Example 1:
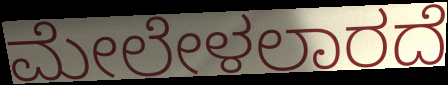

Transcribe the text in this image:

ಮೇಲೇಳಲಾರದೆ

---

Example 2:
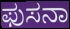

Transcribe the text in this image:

ಫುಸನಾ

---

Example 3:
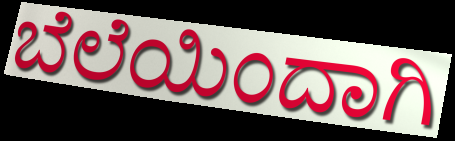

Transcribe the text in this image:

ಬೆಲೆಯಿಂದಾಗಿ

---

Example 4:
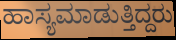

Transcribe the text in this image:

ಹಾಸ್ಯಮಾಡುತ್ತಿದ್ದರು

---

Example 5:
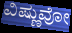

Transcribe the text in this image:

ವಿಷ್ಣುವೋ